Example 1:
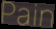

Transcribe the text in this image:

Pain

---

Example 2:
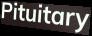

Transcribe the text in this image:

Pituitary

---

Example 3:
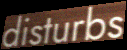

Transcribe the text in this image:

disturbs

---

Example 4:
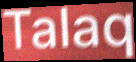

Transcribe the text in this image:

Talaq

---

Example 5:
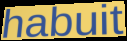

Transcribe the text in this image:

habuit